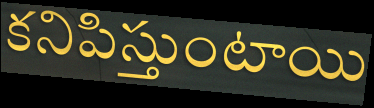
కనిపిస్తుంటాయి